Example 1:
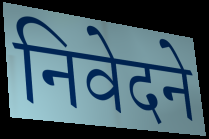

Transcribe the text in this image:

निवेदने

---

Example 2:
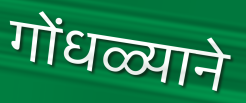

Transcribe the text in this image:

गोंधळ्याने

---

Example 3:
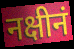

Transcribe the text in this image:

नक्षीनं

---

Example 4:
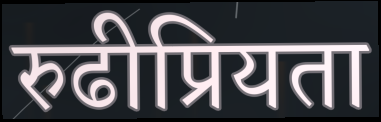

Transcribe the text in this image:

रुढीप्रियता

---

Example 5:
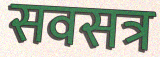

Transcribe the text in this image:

सवसत्र